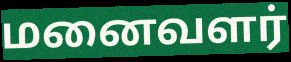
மனைவளர்